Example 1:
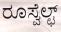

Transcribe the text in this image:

ರೂಸ್ವೆಲ್ಟ್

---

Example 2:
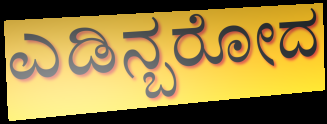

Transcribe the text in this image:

ಎಡಿನ್ಬರೋದ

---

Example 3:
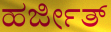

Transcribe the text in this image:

ಹರ್ಜೀತ್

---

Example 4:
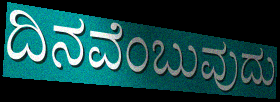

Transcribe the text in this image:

ದಿನವೆಂಬುವುದು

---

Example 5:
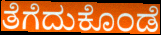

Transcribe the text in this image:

ತೆಗೆದುಕೊಂಡೆ